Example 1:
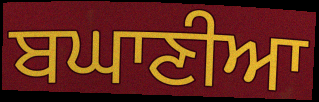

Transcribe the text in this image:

ਬਘਾਣੀਆ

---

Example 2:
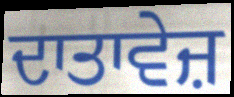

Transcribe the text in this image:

ਦਾਤਾਵੇਜ਼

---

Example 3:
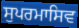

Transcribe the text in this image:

ਸੁਪਰਮਾਸਿਵ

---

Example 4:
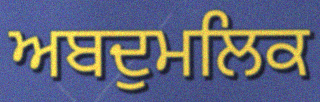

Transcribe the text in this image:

ਅਬਦੁਮਲਿਕ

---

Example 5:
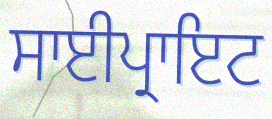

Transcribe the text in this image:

ਸਾਈਪ੍ਰਾਇਟ